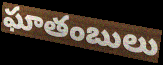
ఘాతంబులు